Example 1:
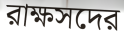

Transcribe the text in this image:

রাক্ষসদের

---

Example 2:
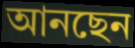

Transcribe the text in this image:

আনছেন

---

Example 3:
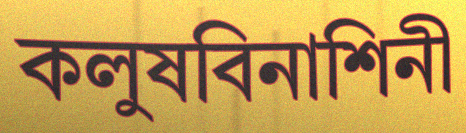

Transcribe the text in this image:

কলুষবিনাশিনী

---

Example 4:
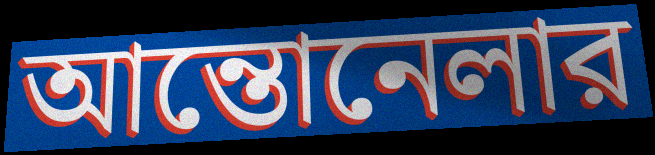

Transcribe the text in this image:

আন্তোনেলার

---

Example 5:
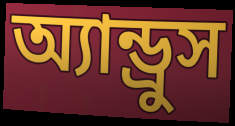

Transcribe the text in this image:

অ্যান্ড্রুস